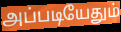
அப்படியேதும்